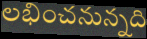
లభించనున్నది